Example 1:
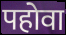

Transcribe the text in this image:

पहोवा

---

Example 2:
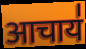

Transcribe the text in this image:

आचाय॑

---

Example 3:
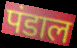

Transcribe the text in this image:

पंडाल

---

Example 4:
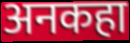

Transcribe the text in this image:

अनकहा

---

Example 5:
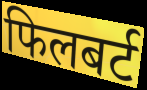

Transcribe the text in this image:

फिलबर्ट